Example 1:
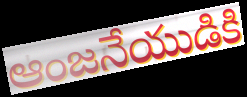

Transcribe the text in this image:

ఆంజనేయుడికి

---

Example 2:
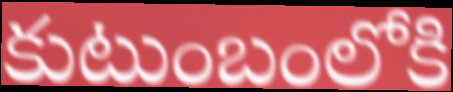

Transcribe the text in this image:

కుటుంబంలోకి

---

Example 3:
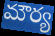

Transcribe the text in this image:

మౌర్య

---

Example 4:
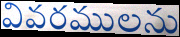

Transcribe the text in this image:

వివరములను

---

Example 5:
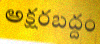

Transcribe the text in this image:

అక్షరబద్దం